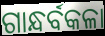
ଗାନ୍ଧର୍ବକଳା